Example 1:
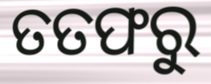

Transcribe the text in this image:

ତତଫରୁ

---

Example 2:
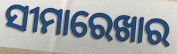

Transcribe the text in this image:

ସୀମାରେଖାର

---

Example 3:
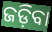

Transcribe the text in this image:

ଜଡ଼ିବା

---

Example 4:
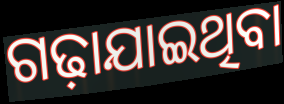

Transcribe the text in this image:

ଗଢ଼ାଯାଇଥିବା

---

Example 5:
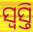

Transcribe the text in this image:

ସ୍ଵସ୍ତି